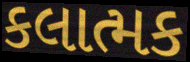
કલાત્મક